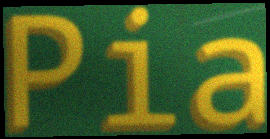
Pia